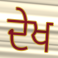
ਦੇਖ